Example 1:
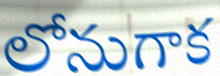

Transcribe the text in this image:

లోనుగాక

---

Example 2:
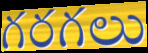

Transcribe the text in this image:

గరగలు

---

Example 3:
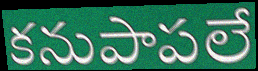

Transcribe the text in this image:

కనుపాపలే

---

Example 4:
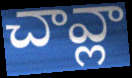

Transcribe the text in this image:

చావ్లా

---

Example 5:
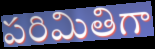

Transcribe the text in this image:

పరిమితిగా